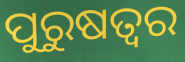
ପୁରୁଷତ୍ଵର